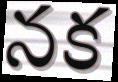
నక